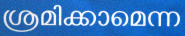
ശ്രമിക്കാമെന്ന